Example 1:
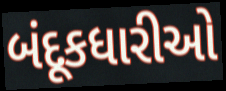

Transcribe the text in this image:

બંદૂકધારીઓ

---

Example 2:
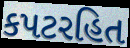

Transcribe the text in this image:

કપટરહિત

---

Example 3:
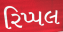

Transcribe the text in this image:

રિપ્પલ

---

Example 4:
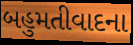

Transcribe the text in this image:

બહુમતીવાદના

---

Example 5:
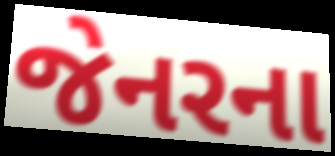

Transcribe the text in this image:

જેનરના